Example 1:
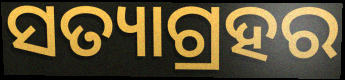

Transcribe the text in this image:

ସତ୍ୟାଗ୍ରହର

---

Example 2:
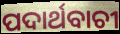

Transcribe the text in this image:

ପଦାର୍ଥବାଚୀ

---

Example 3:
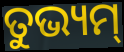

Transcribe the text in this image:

ତୁଭ୍ୟମ୍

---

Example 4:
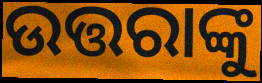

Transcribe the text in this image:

ଉତ୍ତରାଙ୍କୁ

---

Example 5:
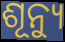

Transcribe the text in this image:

ଶୂନ୍ୟୁ